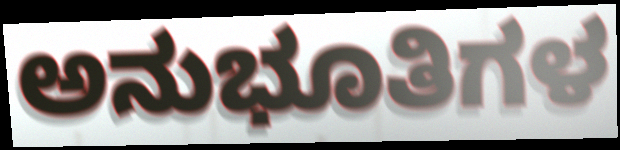
ಅನುಭೂತಿಗಳ